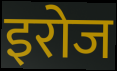
इरोज